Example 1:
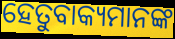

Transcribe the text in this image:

ହେତୁବାକ୍ୟମାନଙ୍କ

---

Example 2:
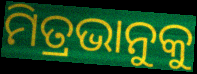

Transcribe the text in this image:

ମିତ୍ରଭାନୁକୁ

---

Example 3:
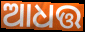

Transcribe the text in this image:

ଆଧତ୍ତ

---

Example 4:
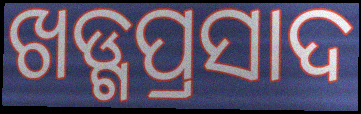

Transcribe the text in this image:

ଖଡ୍ଗପ୍ରସାଦ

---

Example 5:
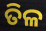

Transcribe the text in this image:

ତିଳ